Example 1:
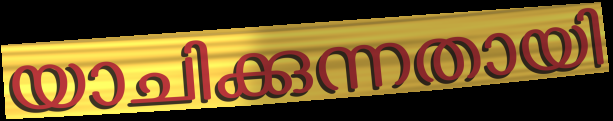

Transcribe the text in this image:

യാചിക്കുന്നതായി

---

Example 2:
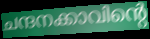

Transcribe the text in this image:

ചന്ദനക്കാവിന്റെ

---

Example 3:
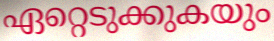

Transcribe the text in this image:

ഏറ്റെടുക്കുകയും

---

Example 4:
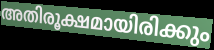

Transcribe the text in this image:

അതിരൂക്ഷമായിരിക്കും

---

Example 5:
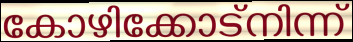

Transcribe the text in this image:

കോഴിക്കോട്നിന്ന്